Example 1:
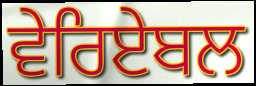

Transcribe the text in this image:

ਵੇਰਿਏਬਲ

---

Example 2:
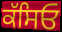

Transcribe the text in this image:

ਕੱਸਿਓ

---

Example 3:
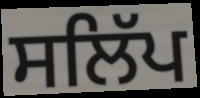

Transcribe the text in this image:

ਸਲਿੱਪ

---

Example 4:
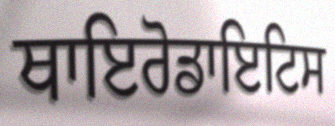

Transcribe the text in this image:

ਥਾਇਰੋਡਾਇਟਿਸ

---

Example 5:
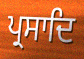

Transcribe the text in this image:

ਪ੍ਰਸਾਦਿ